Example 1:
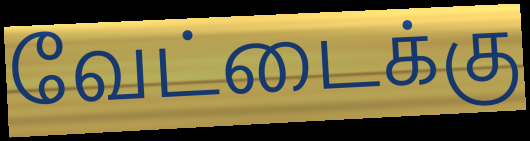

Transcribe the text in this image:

வேட்டைக்கு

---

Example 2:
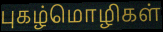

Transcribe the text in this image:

புகழ்மொழிகள்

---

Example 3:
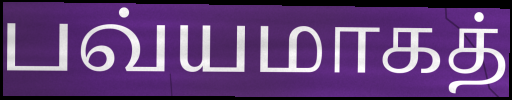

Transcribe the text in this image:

பவ்யமாகத்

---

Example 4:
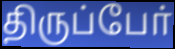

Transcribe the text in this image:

திருப்பேர்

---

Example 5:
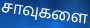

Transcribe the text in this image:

சாவுகளை